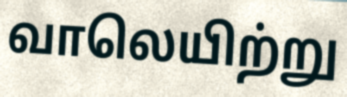
வாலெயிற்று